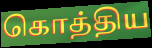
கொத்திய